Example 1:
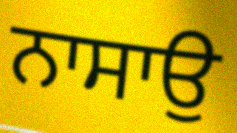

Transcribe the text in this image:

ਨਾਸਾਉ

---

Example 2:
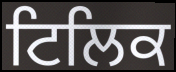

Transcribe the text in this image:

ਟਿਲਿਕ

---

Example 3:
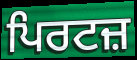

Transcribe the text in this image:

ਪਿਰਟਜ਼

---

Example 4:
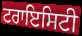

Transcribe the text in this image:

ਟਰਾਇਸਿਟੀ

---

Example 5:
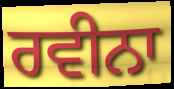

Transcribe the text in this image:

ਰਵੀਨਾ